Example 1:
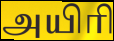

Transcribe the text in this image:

அயிரி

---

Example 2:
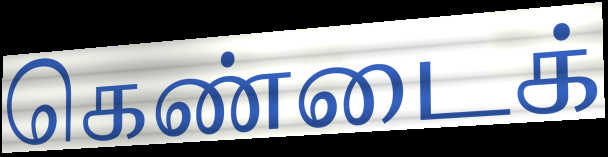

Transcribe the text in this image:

கெண்டைக்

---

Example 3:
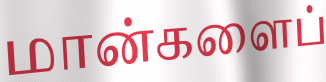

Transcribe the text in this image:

மான்களைப்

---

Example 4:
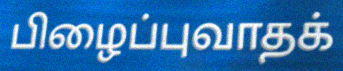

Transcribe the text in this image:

பிழைப்புவாதக்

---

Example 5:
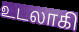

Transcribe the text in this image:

உடலாகி